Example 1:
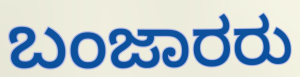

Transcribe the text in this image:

ಬಂಜಾರರು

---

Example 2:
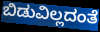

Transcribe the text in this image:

ಬಿಡುವಿಲ್ಲದಂತೆ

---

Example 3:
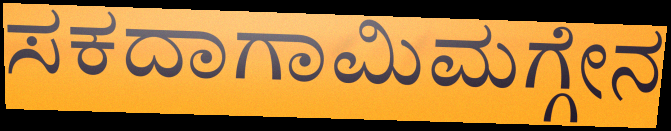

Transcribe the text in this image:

ಸಕದಾಗಾಮಿಮಗ್ಗೇನ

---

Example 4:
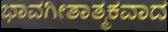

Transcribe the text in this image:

ಭಾವಗೀತಾತ್ಮಕವಾದ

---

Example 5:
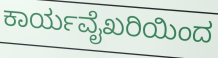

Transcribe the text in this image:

ಕಾರ್ಯವೈಖರಿಯಿಂದ